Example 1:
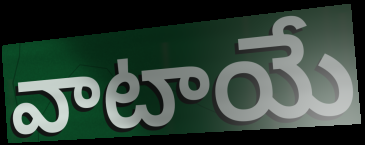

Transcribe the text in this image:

వాటాయే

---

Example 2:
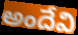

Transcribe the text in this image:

అందేవి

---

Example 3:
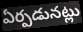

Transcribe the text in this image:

ఏర్పడునట్లు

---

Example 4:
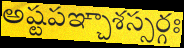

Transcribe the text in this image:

అష్టపఞ్చాశస్సర్గః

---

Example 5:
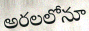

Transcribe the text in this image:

అరలలోనూ